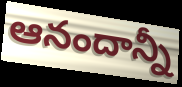
ఆనందాన్నీ